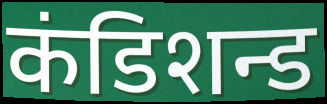
कंडिशन्ड